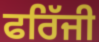
ਫਰਿੱਜੀ